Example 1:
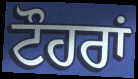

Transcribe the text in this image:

ਟੌਹਰਾਂ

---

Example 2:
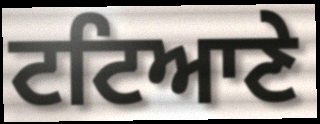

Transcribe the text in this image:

ਟਟਿਆਣੇ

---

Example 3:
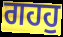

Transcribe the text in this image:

ਗਹਹੁ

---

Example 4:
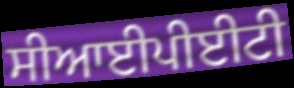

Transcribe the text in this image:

ਸੀਆਈਪੀਈਟੀ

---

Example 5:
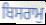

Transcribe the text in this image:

ਬਿਸਰਾਮੁ